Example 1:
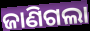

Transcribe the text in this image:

ଜାଣିଗଲା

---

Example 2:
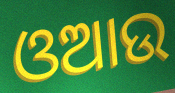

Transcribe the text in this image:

ଓଆଉ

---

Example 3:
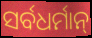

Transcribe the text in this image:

ସର୍ବଧର୍ମାନ୍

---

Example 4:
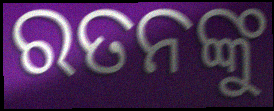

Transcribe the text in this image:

ରତନଙ୍କୁ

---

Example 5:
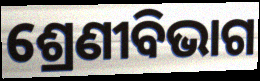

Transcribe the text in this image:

ଶ୍ରେଣୀବିଭାଗ